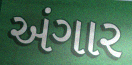
અંગાર